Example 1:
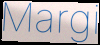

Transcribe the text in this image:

Margi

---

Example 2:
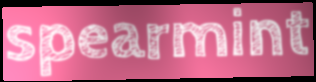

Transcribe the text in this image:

spearmint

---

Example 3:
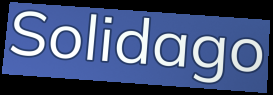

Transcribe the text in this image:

Solidago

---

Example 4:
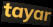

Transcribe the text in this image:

tayar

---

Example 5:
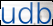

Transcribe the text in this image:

udb